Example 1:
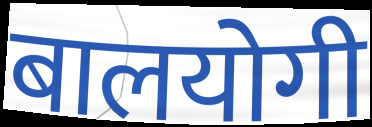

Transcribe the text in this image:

बालयोगी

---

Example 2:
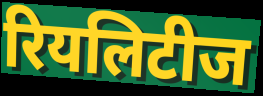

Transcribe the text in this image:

रियलिटीज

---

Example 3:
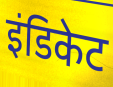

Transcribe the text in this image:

इंडिकेट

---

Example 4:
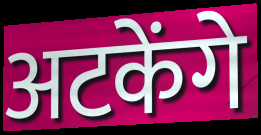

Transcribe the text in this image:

अटकेंगे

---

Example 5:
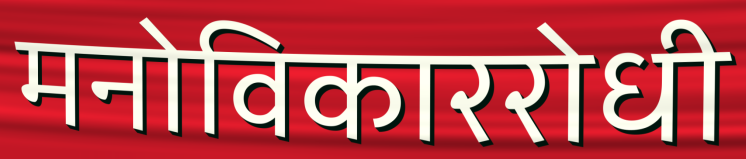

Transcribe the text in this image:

मनोविकाररोधी